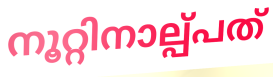
നൂറ്റിനാല്പ്പത്